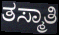
ತಸ್ಮಾತಿ